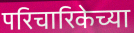
परिचारिकेच्या